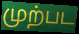
முற்பட